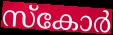
സ്കോർ